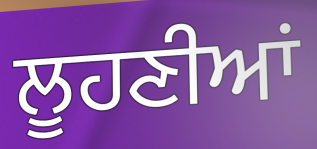
ਲੂਹਣੀਆਂ